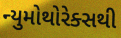
ન્યુમોથોરેક્સથી